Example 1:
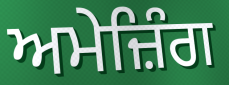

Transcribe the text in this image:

ਅਮੇਜ਼ਿੰਗ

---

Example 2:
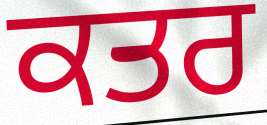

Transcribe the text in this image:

ਕਤਰ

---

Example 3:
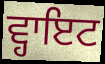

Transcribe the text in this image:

ਵ੍ਹਾਇਟ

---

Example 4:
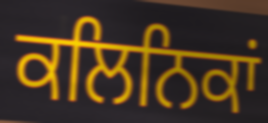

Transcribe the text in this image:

ਕਲਿਨਿਕਾਂ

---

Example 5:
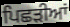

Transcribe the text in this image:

ਪਿਛੜੀਆਂ